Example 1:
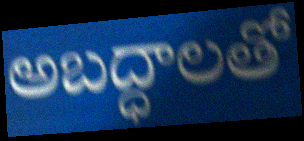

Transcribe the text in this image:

అబద్ధాలతో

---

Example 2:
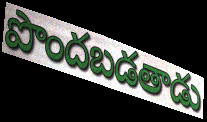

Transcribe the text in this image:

పొందబడతాడు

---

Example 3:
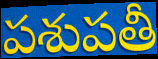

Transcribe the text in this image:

పశుపతీ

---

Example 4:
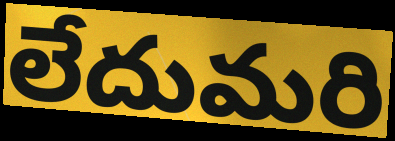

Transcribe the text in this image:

లేదుమరి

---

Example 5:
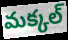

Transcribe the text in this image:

మక్కల్